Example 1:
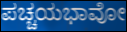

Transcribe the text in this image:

ಪಚ್ಚಯಭಾವೋ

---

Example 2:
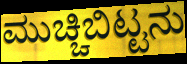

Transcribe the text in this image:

ಮುಚ್ಚಿಬಿಟ್ಟನು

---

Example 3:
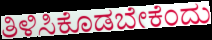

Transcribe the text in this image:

ತಿಳಿಸಿಕೊಡಬೇಕೆಂದು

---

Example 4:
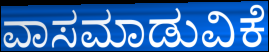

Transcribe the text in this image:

ವಾಸಮಾಡುವಿಕೆ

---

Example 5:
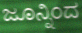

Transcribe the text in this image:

ಜೂನ್ನಿಂದ